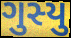
ગુસ્યુ